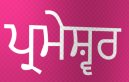
ਪ੍ਰਮੇਸ਼੍ਵਰ